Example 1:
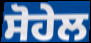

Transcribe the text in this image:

ਸੋਹੇਲ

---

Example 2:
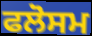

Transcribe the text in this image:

ਫਲੋਸਮ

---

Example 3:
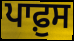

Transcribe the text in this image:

ਪਾਫ਼ੁਸ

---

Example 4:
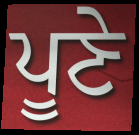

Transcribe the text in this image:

ਪੂਣੇ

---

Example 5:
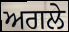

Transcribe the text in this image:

ਅਗਲੇ